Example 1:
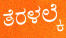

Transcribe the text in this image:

ತೆರಳಲ್ಕೆ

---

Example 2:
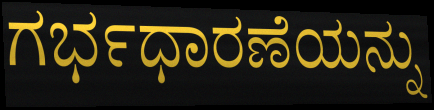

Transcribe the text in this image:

ಗರ್ಭಧಾರಣೆಯನ್ನು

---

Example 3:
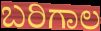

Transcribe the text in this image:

ಬರಿಗಾಲ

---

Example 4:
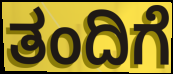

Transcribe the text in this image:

ತಂದಿಗೆ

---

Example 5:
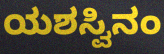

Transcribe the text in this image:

ಯಶಸ್ವಿನಂ